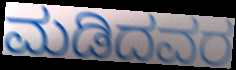
ಮಡಿದವರ